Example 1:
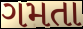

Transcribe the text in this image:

ગમતા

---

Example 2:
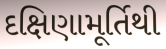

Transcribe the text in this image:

દક્ષિણામૂર્તિથી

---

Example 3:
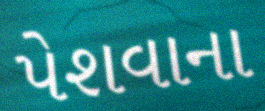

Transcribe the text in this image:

પેશવાના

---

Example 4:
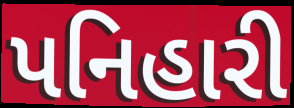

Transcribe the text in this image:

પનિહારી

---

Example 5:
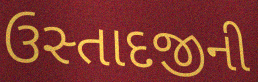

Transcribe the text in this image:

ઉસ્તાદજીની